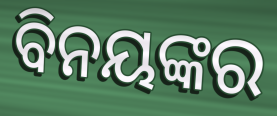
ବିନୟଙ୍କର